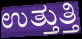
ಉತ್ತುತ್ತಿ